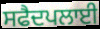
ਸਫੈਦਪਲਾਈ